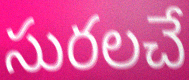
సురలచే